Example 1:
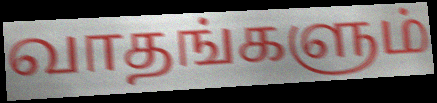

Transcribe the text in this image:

வாதங்களும்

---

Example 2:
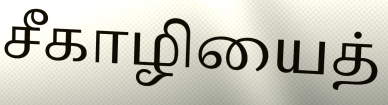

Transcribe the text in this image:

சீகாழியைத்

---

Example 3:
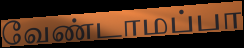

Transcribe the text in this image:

வேண்டாமப்பா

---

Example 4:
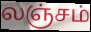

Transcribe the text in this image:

லஞ்சம்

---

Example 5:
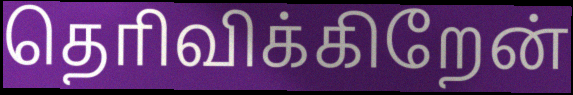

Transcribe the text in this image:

தெரிவிக்கிறேன்